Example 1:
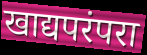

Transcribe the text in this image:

खाद्यपरंपरा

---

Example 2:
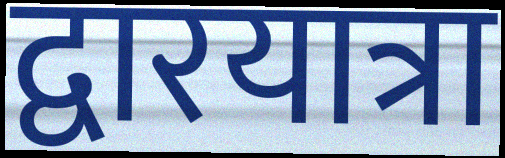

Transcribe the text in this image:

द्वारयात्रा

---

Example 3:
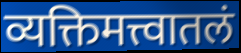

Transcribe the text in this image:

व्यक्तिमत्त्वातलं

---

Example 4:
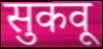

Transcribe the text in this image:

सुकवू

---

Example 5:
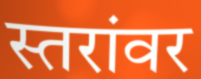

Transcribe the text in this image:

स्तरांवर